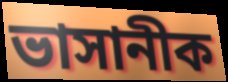
ভাসানীক